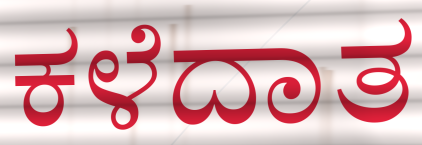
ಕಳೆದಾತ